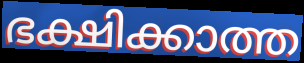
ഭക്ഷിക്കാത്ത